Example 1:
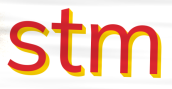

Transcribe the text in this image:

stm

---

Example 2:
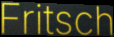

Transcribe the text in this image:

Fritsch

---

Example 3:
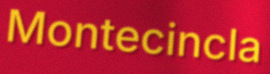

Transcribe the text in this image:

Montecincla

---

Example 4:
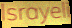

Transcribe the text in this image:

Israyeli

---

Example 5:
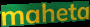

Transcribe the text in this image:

maheta